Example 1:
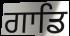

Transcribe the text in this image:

ਗਾਡਿ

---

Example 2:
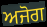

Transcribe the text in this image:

ਅਜੋਗ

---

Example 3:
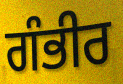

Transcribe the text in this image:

ਗੰਭੀਰ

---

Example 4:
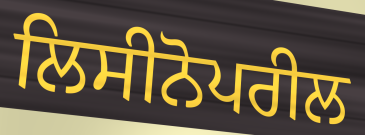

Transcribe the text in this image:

ਲਿਸੀਨੋਪਰੀਲ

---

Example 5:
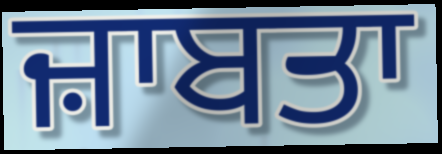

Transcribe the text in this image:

ਜ਼ਾਬਤਾ